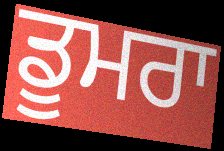
ਡੂਮਰਾ